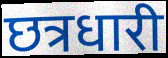
छत्रधारी